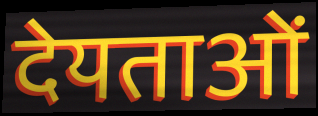
देयताओं